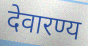
देवारण्य